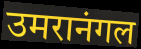
उमरानंगल